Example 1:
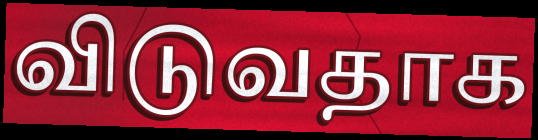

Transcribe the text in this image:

விடுவதாக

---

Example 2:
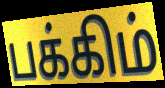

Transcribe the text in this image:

பக்கிம்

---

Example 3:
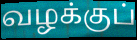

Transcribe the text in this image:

வழக்குப்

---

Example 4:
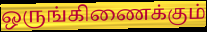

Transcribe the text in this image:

ஒருங்கிணைக்கும்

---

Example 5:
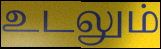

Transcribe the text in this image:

உடலும்